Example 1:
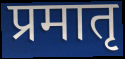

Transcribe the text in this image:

प्रमातृ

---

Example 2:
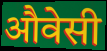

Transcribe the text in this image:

औवेसी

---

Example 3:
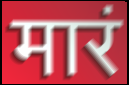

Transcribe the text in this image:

मारं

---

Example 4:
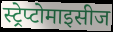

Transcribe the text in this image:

स्ट्रेप्टोमाइसीज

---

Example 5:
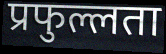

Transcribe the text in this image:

प्रफुल्लता